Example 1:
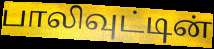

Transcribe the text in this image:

பாலிவுட்டின்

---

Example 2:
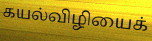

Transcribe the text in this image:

கயல்விழியைக்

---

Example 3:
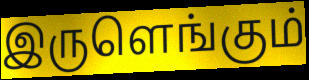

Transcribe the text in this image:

இருளெங்கும்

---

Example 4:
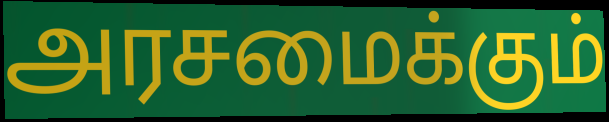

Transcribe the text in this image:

அரசமைக்கும்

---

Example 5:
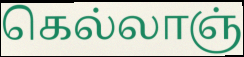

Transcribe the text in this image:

கெல்லாஞ்